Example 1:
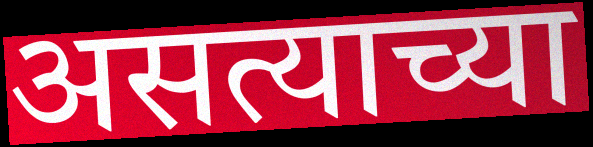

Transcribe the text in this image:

असत्याच्या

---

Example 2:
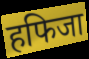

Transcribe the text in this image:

हफिजा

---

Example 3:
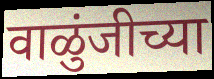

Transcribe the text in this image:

वाळुंजीच्या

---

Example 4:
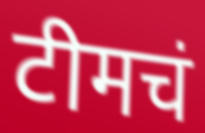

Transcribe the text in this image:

टीमचं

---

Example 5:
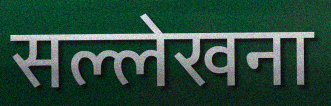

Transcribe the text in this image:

सल्लेखना